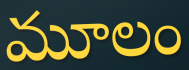
మూలం